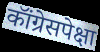
कॉंग्रेसपेक्षा